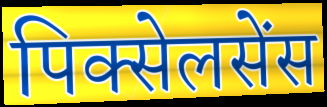
पिक्सेलसेंस